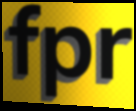
fpr